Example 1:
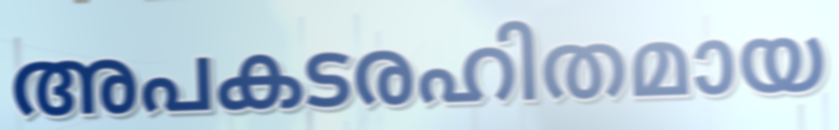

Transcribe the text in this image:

അപകടരഹിതമായ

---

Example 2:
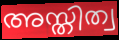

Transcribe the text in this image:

അസ്തിത്വ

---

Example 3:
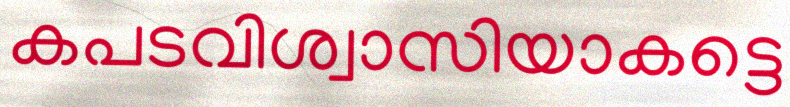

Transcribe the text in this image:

കപടവിശ്വാസിയാകട്ടെ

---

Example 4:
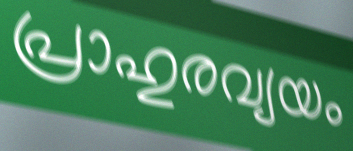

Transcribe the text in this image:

പ്രാഹുരവ്യയം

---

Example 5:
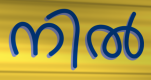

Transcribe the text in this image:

നിൽ